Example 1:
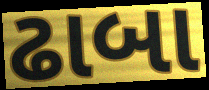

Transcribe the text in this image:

ઢાબા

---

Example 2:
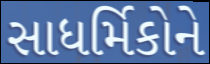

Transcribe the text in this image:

સાધર્મિકોને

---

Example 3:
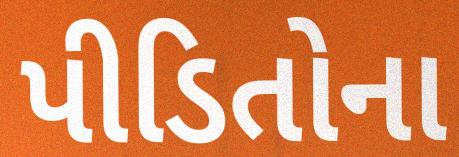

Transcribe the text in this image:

પીડિતોના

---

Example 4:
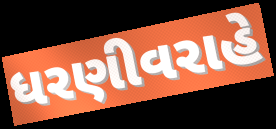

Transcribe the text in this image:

ધરણીવરાહે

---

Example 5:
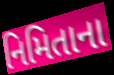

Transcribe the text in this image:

નિમિતાના